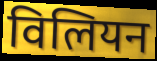
विलियन